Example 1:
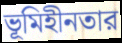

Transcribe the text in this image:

ভূমিহীনতার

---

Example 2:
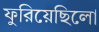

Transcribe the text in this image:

ফুরিয়েছিলো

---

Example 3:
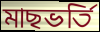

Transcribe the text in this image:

মাছভর্তি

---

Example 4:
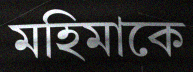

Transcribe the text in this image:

মহিমাকে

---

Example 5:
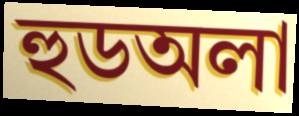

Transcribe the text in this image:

হুডঅলা